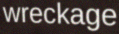
wreckage